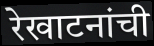
रेखाटनांची